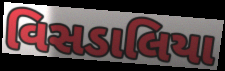
વિસડાલિયા